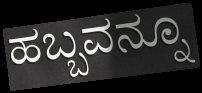
ಹಬ್ಬವನ್ನೂ